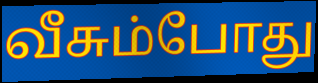
வீசும்போது